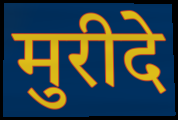
मुरीदे